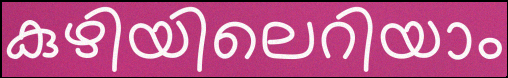
കുഴിയിലെറിയാം